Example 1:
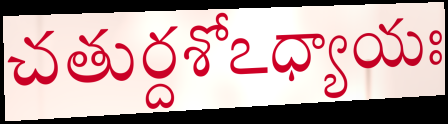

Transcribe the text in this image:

చతుర్దశోఽధ్యాయః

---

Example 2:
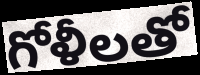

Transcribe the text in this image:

గోళీలతో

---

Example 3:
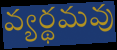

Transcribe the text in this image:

వ్యర్థమవు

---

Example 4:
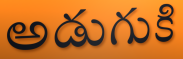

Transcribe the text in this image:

అడుగుకి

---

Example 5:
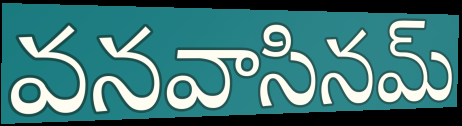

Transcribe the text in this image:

వనవాసినమ్